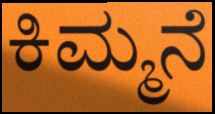
ಕಿಮ್ಮನೆ